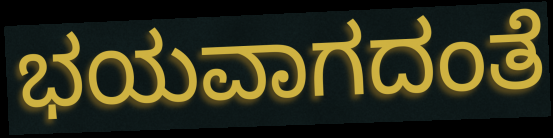
ಭಯವಾಗದಂತೆ